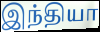
இந்தியா